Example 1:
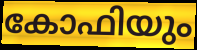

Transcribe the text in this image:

കോഫിയും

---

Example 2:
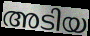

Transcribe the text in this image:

അടിയ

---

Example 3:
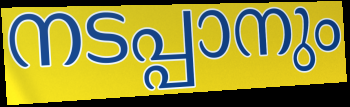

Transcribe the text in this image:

നടപ്പാനും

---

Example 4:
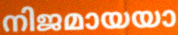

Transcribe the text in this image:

നിജമായയാ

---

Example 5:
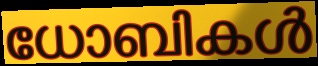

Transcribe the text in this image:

ധോബികൾ